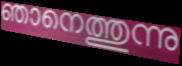
ഞാനെത്തുന്നു